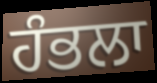
ਹੰਭਲਾ